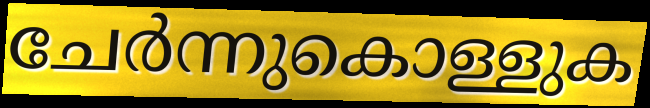
ചേർന്നുകൊള്ളുക